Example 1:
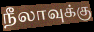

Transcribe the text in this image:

நீலாவுக்கு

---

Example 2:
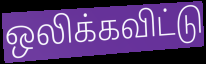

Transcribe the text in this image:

ஒலிக்கவிட்டு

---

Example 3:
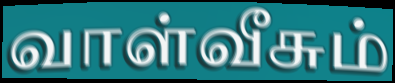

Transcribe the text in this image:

வாள்வீசும்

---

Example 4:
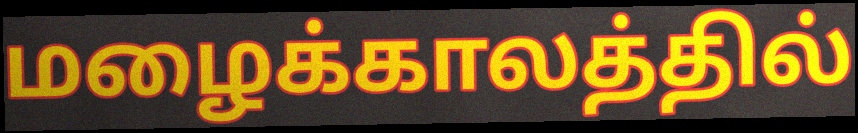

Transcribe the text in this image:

மழைக்காலத்தில்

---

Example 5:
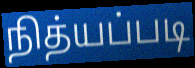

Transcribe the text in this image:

நித்யப்படி